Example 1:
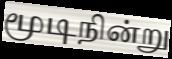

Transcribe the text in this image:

மூடிநின்று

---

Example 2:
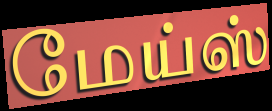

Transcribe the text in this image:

மேய்ஸ்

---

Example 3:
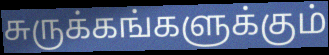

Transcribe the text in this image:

சுருக்கங்களுக்கும்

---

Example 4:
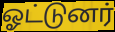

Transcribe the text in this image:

ஓட்டுனர்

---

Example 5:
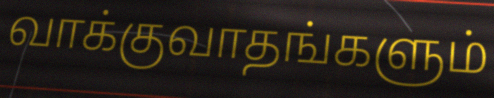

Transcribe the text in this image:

வாக்குவாதங்களும்